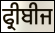
ਫ੍ਰੀਬੀਜ